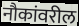
नौकांवरील